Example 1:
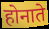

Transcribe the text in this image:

होनाते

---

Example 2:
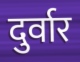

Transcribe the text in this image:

दुर्वार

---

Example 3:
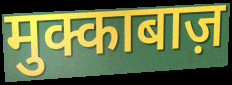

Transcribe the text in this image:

मुक्काबाज़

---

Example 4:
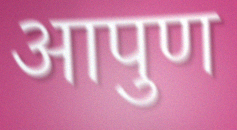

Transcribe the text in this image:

आपुण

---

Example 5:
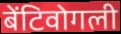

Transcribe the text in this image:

बेंटिवोगली